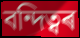
বন্দিত্বৰ